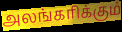
அலங்கரிக்கும்